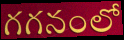
గగనంలో